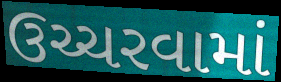
ઉચ્ચરવામાં